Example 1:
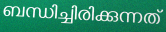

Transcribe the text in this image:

ബന്ധിച്ചിരിക്കുന്നത്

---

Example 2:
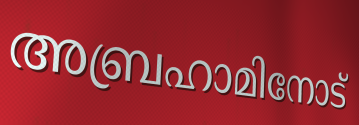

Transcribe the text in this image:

അബ്രഹാമിനോട്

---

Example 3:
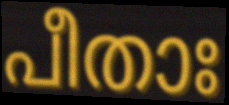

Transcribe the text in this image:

പീതാഃ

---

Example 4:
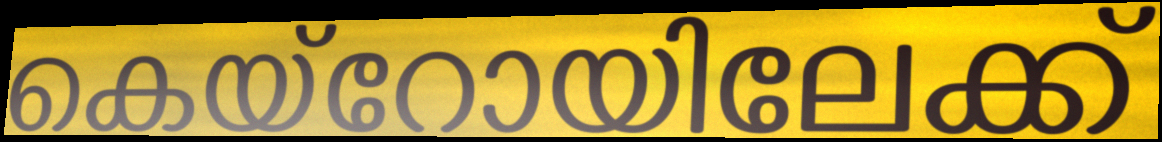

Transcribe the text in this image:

കെയ്റോയിലേക്ക്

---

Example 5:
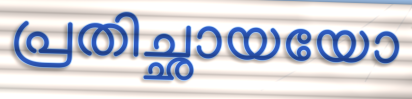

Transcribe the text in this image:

പ്രതിച്ഛായയോ